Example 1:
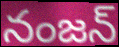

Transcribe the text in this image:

నంజన్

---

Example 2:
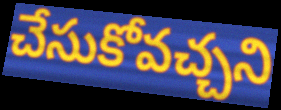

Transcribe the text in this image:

చేసుకోవచ్చని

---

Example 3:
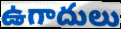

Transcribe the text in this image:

ఉగాదులు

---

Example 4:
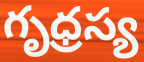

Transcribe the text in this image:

గృధ్రస్య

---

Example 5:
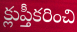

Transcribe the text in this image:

క్లుప్తీకరించి